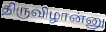
திருவிழான்னு